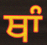
ਥਾੰ